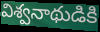
విశ్వనాథుడికి